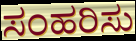
ಸಂಹರಿಸು